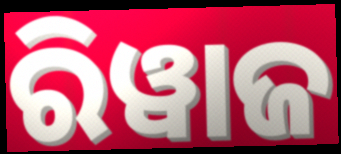
ରିୱାଜ